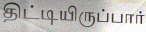
திட்டியிருப்பார்